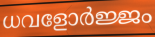
ധവളോർജ്ജം